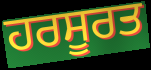
ਹਰਸੂਰਤ